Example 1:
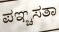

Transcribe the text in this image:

ಪಞ್ಚಸತಾ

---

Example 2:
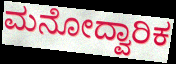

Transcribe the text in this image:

ಮನೋದ್ವಾರಿಕ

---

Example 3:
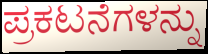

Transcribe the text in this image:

ಪ್ರಕಟನೆಗಳನ್ನು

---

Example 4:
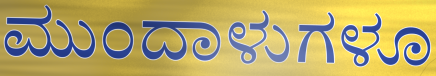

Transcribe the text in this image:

ಮುಂದಾಳುಗಳೂ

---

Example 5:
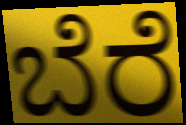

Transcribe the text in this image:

ಬೆರೆ